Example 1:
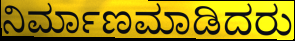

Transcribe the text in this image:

ನಿರ್ಮಾಣಮಾಡಿದರು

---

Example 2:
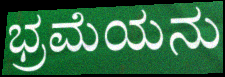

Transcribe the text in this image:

ಭ್ರಮೆಯನು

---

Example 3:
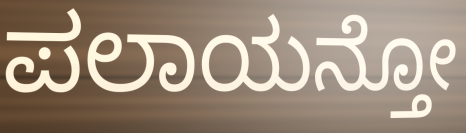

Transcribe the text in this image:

ಪಲಾಯನ್ತೋ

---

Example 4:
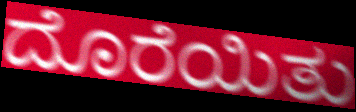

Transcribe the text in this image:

ದೊರೆಯಿತು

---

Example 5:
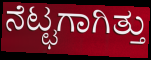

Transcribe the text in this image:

ನೆಟ್ಟಗಾಗಿತ್ತು